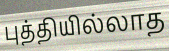
புத்தியில்லாத